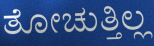
ತೋಚುತ್ತಿಲ್ಲ